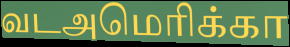
வடஅமெரிக்கா